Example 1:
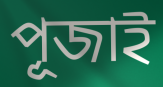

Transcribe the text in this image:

পূজাই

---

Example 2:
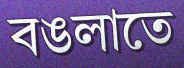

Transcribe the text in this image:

বঙলাতে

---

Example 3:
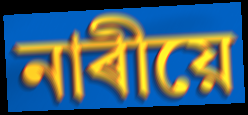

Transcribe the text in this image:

নাৰীয়ে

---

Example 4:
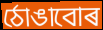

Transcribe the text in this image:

ঠোঙাবোৰ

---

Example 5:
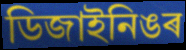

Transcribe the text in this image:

ডিজাইনিঙৰ